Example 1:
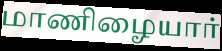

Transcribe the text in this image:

மாணிழையார்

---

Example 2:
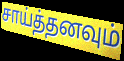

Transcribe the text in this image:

சாய்த்தனவும்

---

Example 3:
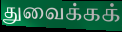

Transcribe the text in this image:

துவைக்கக்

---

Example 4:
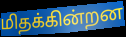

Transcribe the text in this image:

மிதக்கின்றன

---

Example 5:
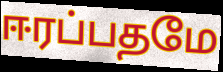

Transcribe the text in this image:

ஈரப்பதமே